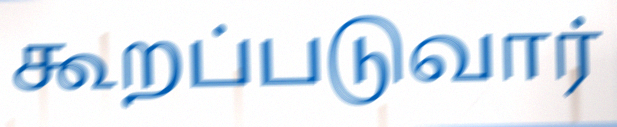
கூறப்படுவார்